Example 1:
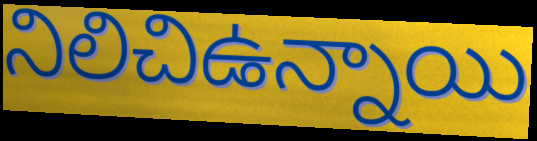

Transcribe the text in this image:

నిలిచిఉన్నాయి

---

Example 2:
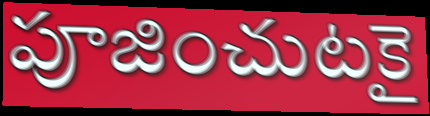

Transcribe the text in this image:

పూజించుటకై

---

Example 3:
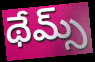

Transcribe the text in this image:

థేమ్స్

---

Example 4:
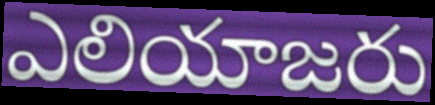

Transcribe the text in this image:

ఎలియాజరు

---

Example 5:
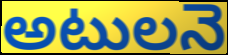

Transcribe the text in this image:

అటులనె